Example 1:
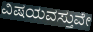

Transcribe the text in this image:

ವಿಷಯವಸ್ತುವೇ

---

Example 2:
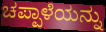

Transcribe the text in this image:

ಚಪ್ಪಾಳೆಯನ್ನು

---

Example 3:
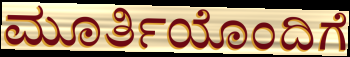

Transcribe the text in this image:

ಮೂರ್ತಿಯೊಂದಿಗೆ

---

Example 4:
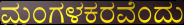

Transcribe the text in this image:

ಮಂಗಳಕರವೆಂದು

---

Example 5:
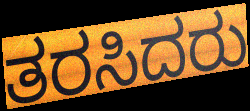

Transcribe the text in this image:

ತರಸಿದರು